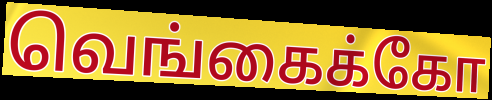
வெங்கைக்கோ